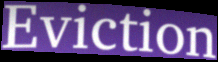
Eviction